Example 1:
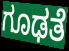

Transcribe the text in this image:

ಗೂಢತೆ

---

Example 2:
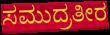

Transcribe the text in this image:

ಸಮುದ್ರತೀರ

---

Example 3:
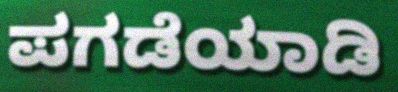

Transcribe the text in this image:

ಪಗಡೆಯಾಡಿ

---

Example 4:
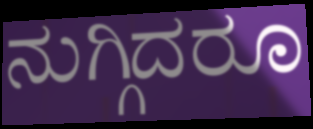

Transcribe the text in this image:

ನುಗ್ಗಿದರೂ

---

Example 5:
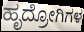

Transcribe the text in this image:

ಹೃದ್ರೋಗಿಗಳ